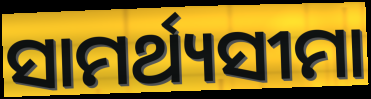
ସାମର୍ଥ୍ୟସୀମା